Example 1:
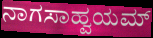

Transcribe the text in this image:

ನಾಗಸಾಹ್ವಯಮ್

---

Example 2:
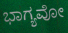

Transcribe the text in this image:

ಭಾಗ್ಯವೋ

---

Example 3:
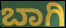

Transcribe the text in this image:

ಬಾಗಿ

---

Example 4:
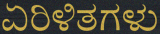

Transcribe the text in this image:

ಏರಿಳಿತಗಳು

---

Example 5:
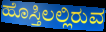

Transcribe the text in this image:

ಹೊಸ್ತಿಲಲ್ಲಿರುವ